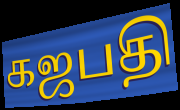
கஜபதி